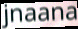
jnaana